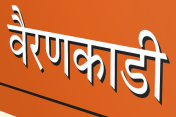
वैरणकाडी